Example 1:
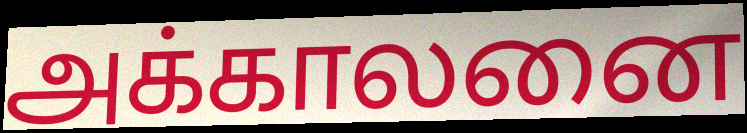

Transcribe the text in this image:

அக்காலனை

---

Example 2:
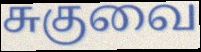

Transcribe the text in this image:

சுகுவை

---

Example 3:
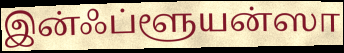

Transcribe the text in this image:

இன்ஃப்ளூயன்ஸா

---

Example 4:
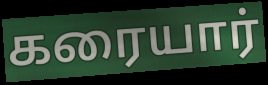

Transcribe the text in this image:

கரையார்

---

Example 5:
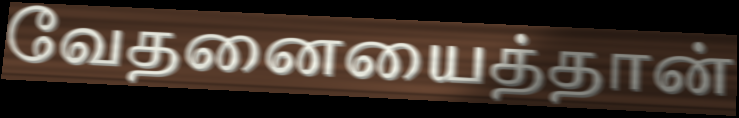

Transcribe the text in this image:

வேதனையைத்தான்